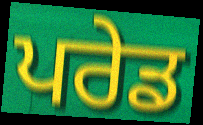
ਪਰੇਡ